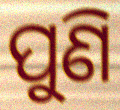
ପୁଣି